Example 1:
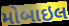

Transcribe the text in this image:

મોબાઇલ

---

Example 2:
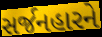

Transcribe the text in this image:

સર્જનહારને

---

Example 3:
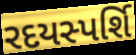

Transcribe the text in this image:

રદયસ્પર્શિ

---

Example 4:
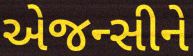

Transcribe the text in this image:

એજન્સીને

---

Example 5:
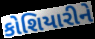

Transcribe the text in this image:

કોશિયારીને